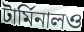
টার্মিনালও